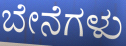
ಬೇನೆಗಳು